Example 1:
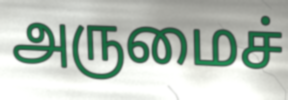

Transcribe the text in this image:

அருமைச்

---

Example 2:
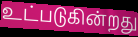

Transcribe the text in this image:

உட்படுகின்றது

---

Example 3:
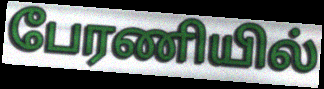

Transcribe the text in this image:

பேரணியில்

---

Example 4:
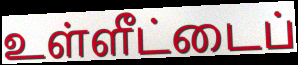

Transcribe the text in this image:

உள்ளீட்டைப்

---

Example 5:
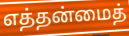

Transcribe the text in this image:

எத்தன்மைத்